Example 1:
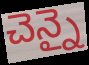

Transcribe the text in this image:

చెన్నై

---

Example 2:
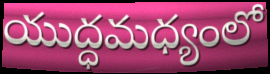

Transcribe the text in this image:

యుద్ధమధ్యంలో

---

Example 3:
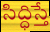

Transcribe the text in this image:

సిద్ధిస్తే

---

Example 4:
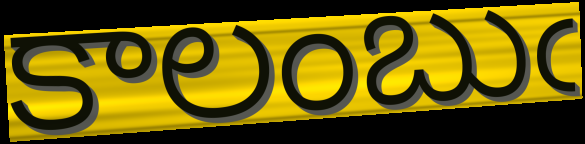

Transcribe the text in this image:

కాలంబుఁ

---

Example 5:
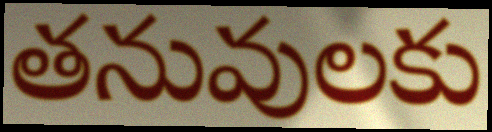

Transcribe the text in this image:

తనువులకు